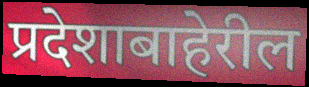
प्रदेशाबाहेरील